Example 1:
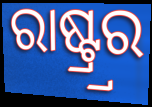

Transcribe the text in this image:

ରାଷ୍ଟ୍ର୍ରର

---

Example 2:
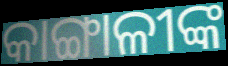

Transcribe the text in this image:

କାଙ୍ଗାଳୀଙ୍କ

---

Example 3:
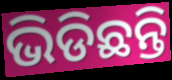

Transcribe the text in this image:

ଭିଡିଛନ୍ତି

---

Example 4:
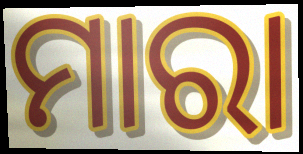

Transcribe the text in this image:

ମାରା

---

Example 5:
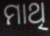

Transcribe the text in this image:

ମାଥି